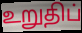
உறுதிப்